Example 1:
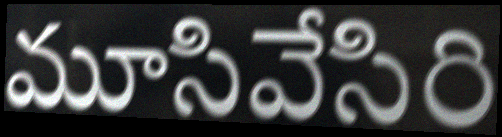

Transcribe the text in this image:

మూసివేసిరి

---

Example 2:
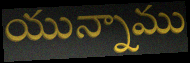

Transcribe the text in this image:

యున్నాము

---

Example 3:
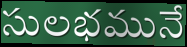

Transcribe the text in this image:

సులభమునే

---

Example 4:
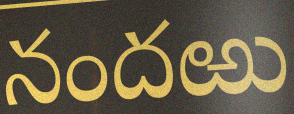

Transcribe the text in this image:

నందఱు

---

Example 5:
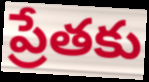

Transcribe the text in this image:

ప్రేతకు